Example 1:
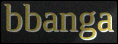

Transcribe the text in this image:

bbanga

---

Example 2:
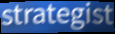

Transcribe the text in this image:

strategist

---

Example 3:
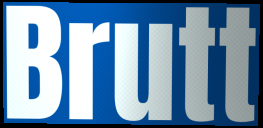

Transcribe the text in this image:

Brutt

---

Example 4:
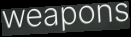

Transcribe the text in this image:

weapons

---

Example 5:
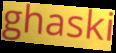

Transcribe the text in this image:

ghaski